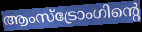
ആംസ്ട്രോംഗിന്റെ